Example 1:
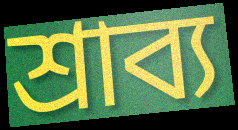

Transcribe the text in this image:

শ্ৰাব্য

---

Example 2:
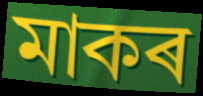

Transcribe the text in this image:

মাকৰ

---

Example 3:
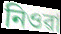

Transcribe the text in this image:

নিওৱা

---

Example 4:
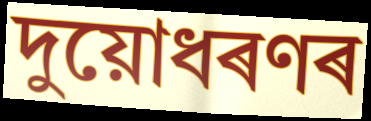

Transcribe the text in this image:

দুয়োধৰণৰ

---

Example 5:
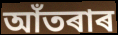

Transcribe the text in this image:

আঁতৰাৰ